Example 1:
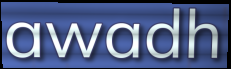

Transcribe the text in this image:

awadh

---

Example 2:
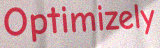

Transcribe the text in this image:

Optimizely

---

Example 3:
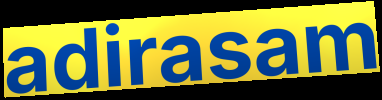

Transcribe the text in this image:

adirasam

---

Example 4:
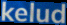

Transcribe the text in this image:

kelud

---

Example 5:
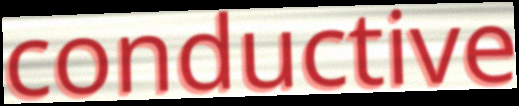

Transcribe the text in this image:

conductive